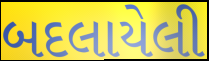
બદલાયેલી